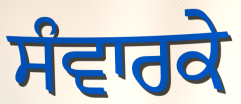
ਸੰਵਾਰਕੇ